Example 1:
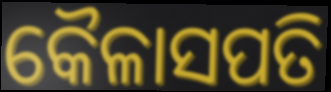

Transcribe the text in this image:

କୈଳାସପତି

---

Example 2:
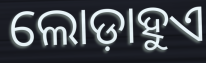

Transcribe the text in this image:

ଲୋଡ଼ାହୁଏ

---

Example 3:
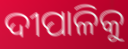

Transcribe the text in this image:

ଦୀପାଳିକୁ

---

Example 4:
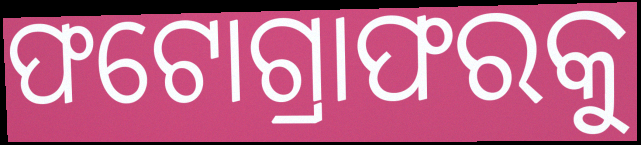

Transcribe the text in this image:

ଫଟୋଗ୍ରାଫରକୁ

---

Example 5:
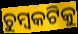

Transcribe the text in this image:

ଚୁମ୍ବକଟିକୁ